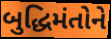
બુદ્ધિમંતોને